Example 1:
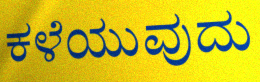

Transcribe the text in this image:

ಕಳೆಯುವುದು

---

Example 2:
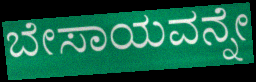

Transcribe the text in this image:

ಬೇಸಾಯವನ್ನೇ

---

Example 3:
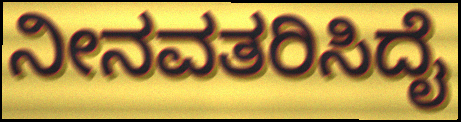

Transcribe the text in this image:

ನೀನವತರಿಸಿದೈ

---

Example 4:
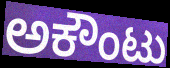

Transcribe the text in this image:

ಅಕೌಂಟು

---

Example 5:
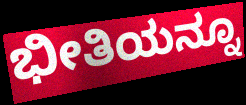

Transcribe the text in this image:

ಭೀತಿಯನ್ನೂ